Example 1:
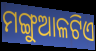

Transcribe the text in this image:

ମଙ୍ଗୁଆଳଟିଏ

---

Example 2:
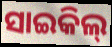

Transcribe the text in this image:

ସାଇକିଲ୍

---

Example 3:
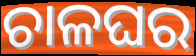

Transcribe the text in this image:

ଚାଳଘର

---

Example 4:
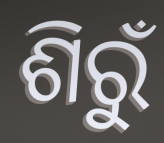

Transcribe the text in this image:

ଶିରୁଁ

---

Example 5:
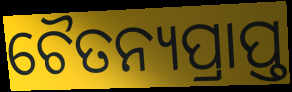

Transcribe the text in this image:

ଚୈତନ୍ୟପ୍ରାପ୍ତ